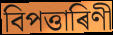
বিপত্তাৰিণী